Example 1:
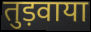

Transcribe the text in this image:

तुड़वाया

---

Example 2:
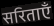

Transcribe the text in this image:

सरिताएँ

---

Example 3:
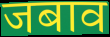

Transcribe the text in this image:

जबाव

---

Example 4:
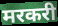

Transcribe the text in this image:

मरकरी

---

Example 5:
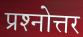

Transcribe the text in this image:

प्रश्‍नोत्तर